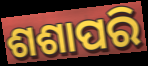
ଶଶାପରି